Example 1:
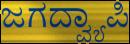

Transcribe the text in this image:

ಜಗದ್ವ್ಯಾಪಿ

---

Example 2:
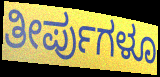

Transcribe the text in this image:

ತೀರ್ಪುಗಳೂ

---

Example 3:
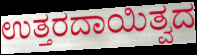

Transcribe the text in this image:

ಉತ್ತರದಾಯಿತ್ವದ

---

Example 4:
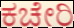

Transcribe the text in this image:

ಕಚೇರಿ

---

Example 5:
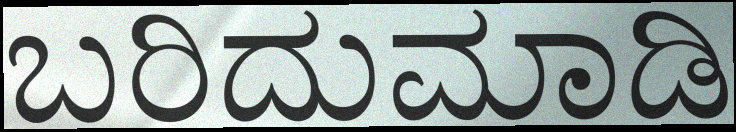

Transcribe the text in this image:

ಬರಿದುಮಾಡಿ